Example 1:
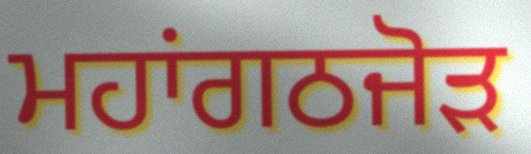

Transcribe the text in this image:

ਮਹਾਂਗਠਜੋਡ਼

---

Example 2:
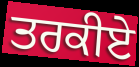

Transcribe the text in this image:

ਤਰਕੀਏ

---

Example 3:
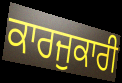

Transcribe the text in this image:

ਕਾਰਜੁਕਾਰੀ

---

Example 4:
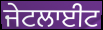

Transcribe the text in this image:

ਜੇਟਲਾਈਟ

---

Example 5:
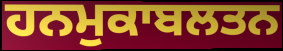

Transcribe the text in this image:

ਹਨਮੁਕਾਬਲਤਨ